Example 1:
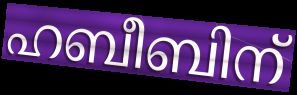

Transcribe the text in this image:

ഹബീബിന്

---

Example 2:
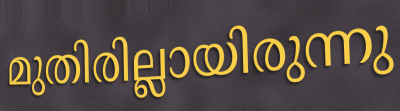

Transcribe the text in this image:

മുതിരില്ലായിരുന്നു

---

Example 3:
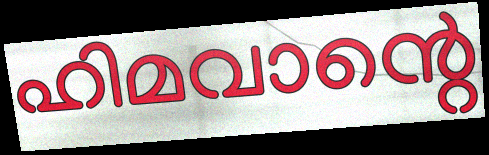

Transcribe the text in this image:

ഹിമവാന്റെ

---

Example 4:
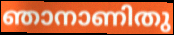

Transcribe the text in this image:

ഞാനാണിതു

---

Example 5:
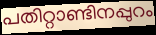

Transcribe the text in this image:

പതിറ്റാണ്ടിനപ്പുറം